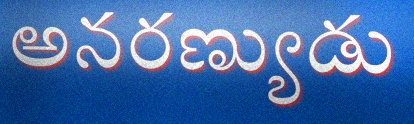
అనరణ్యుడు